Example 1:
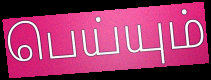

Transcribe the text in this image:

பெய்யும்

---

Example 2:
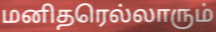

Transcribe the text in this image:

மனிதரெல்லாரும்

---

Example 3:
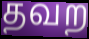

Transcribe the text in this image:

தவற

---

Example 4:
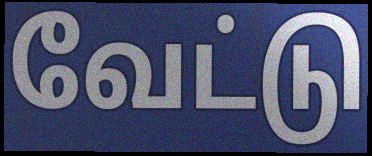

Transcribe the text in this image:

வேட்டு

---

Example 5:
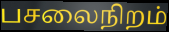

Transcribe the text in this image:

பசலைநிறம்